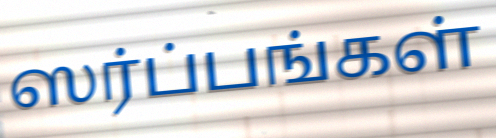
ஸர்ப்பங்கள்